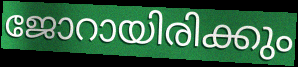
ജോറായിരിക്കും